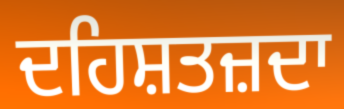
ਦਹਿਸ਼ਤਜ਼ਦਾ